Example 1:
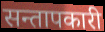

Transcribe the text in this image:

सन्तापकारी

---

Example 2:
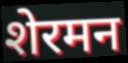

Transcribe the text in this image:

शेरमन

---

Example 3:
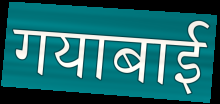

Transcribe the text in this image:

गयाबाई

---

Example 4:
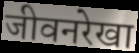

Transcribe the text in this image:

जीवनरेखा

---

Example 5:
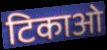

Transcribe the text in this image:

टिकाओ